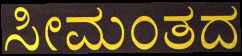
ಸೀಮಂತದ